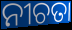
ନୀଚତା